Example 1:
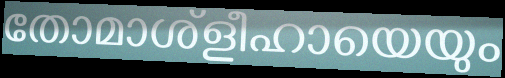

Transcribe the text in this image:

തോമാശ്ളീഹായെയും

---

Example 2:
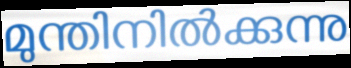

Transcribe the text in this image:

മുന്തിനിൽക്കുന്നു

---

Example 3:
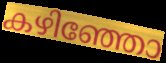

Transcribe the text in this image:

കഴിഞ്ഞോ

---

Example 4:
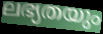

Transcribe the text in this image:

ലഭ്യതയും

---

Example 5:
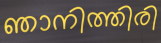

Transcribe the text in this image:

ഞാനിത്തിരി